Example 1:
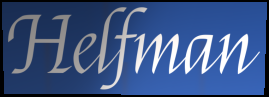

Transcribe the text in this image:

Helfman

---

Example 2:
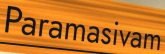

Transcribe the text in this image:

Paramasivam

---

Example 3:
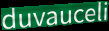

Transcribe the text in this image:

duvauceli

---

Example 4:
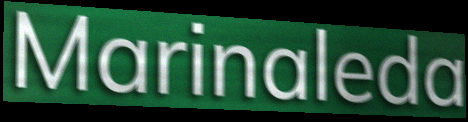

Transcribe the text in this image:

Marinaleda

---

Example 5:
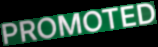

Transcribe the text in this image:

PROMOTED